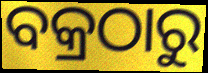
ବକ୍ରଠାରୁ